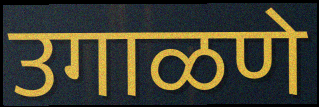
उगाळणे